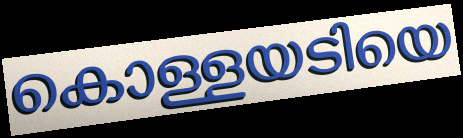
കൊള്ളയടിയെ